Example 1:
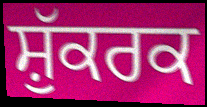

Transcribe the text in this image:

ਸ਼ੁੱਕਰਕ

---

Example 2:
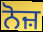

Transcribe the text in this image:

ਨੋਜ਼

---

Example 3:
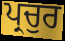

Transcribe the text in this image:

ਪ੍ਰਚੁਰ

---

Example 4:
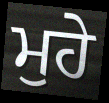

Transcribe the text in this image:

ਮੁਹੇ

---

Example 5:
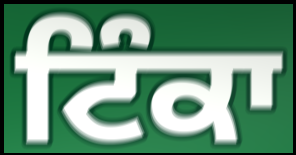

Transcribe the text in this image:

ਟਿੰਕਾ